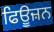
ਫਿਊਜ਼ਨ